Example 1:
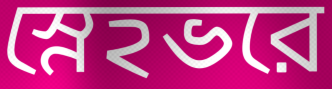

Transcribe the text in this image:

স্নেহভরে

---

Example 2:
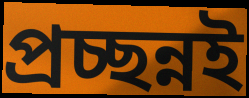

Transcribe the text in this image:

প্রচ্ছন্নই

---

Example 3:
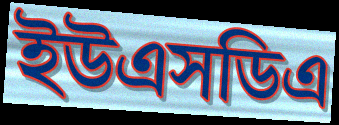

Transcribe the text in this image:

ইউএসডিএ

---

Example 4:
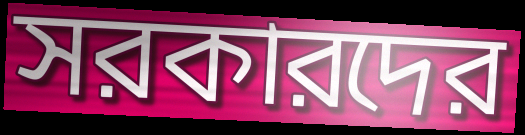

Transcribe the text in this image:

সরকারদের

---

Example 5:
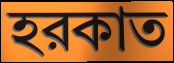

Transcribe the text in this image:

হরকাত